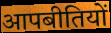
आपबीतियों